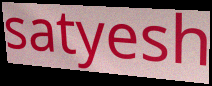
satyesh